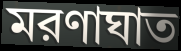
মরণাঘাত